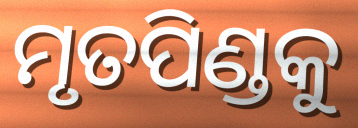
ମୃତପିଣ୍ଡକୁ